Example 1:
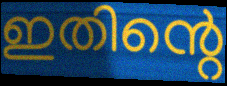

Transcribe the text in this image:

ഇതിന്റെ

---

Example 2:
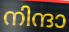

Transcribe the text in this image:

നിന്ദാ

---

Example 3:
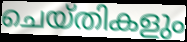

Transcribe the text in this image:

ചെയ്തികളും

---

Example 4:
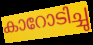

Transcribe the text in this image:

കാറോടിച്ചു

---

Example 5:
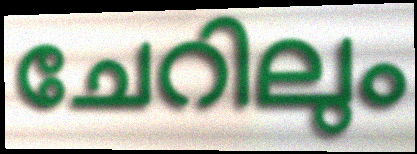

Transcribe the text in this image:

ചേറിലും